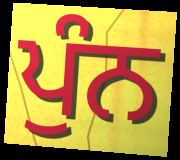
ਪੁੰਨ